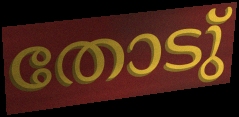
തോടു്